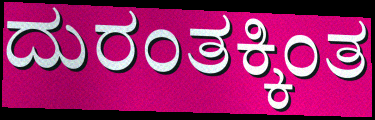
ದುರಂತಕ್ಕಿಂತ